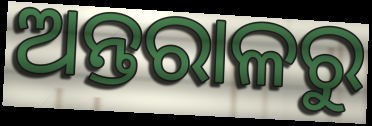
ଅନ୍ତରାଳରୁ